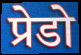
प्रेडो